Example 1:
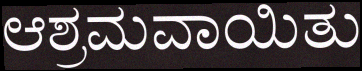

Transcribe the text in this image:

ಆಶ್ರಮವಾಯಿತು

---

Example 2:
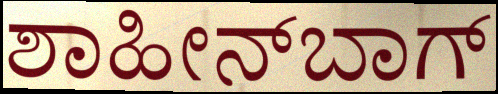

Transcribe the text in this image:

ಶಾಹೀನ್‌ಬಾಗ್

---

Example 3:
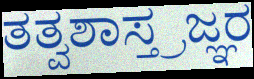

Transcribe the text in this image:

ತತ್ವಶಾಸ್ತ್ರಜ್ಞರ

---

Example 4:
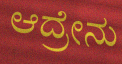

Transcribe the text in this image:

ಆದ್ರೇನು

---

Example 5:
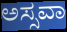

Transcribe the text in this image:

ಅಸ್ಸವಾ